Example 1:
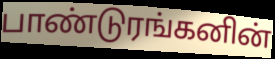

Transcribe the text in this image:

பாண்டுரங்கனின்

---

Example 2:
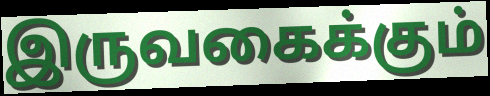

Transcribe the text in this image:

இருவகைக்கும்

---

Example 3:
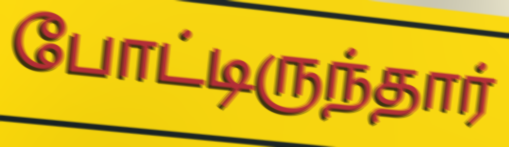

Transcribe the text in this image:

போட்டிருந்தார்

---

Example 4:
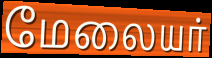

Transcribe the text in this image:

மேலையர்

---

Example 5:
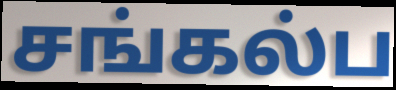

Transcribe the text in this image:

சங்கல்ப